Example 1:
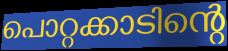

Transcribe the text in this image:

പൊറ്റക്കാടിന്റെ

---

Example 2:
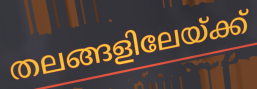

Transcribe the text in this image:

തലങ്ങളിലേയ്ക്ക്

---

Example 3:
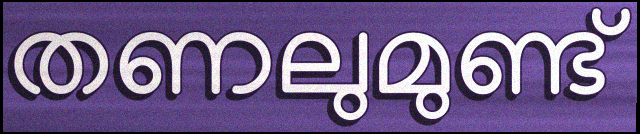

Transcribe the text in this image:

തണലുമുണ്ട്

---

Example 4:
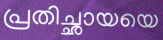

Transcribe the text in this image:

പ്രതിച്ഛായയെ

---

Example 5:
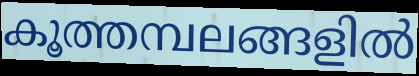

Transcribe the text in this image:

കൂത്തമ്പലങ്ങളിൽ